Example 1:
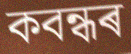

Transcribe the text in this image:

কবন্ধৰ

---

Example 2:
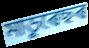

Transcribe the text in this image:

মাডুৰেছৰ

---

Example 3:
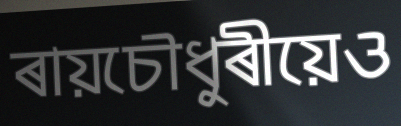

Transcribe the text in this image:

ৰায়চৌধুৰীয়েও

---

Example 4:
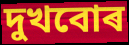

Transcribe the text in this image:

দুখবোৰ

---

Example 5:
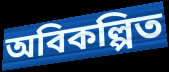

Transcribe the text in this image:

অবিকল্পিত